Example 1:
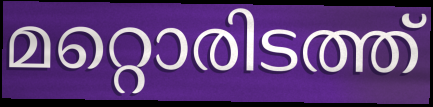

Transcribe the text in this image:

മറ്റൊരിടത്ത്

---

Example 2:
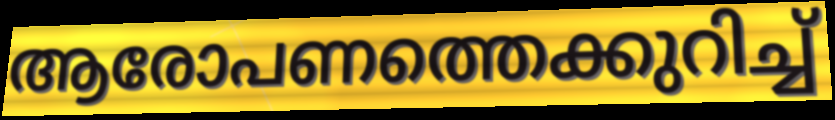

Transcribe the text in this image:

ആരോപണത്തെക്കുറിച്ച്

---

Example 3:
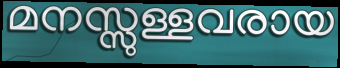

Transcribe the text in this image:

മനസ്സുള്ളവരായ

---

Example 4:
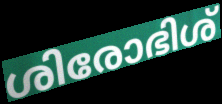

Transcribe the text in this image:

ശിരോഭിശ്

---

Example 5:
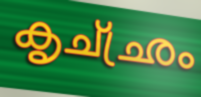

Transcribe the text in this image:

കൃച്ഛ്രം